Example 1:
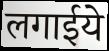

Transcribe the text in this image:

लगाईये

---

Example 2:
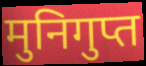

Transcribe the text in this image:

मुनिगुप्त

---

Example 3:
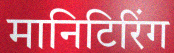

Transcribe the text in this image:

मानिटिरिंग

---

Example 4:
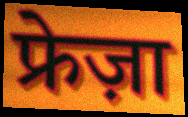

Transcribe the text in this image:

फ्रेज़ा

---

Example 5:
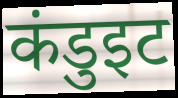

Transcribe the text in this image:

कंडुइट